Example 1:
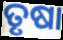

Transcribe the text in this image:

ତୃଷା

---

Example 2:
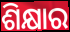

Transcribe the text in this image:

ଶିକ୍ଷାର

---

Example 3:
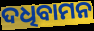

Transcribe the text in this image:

ଦଧିବାମନ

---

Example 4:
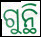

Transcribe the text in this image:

ଗୁନ୍ଥି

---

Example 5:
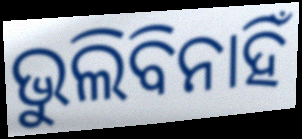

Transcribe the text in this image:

ଭୁଲିବିନାହିଁ